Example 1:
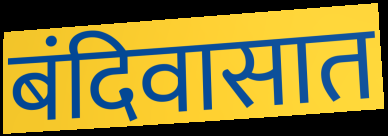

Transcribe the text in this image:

बंदिवासात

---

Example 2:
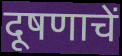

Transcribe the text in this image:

दूषणाचें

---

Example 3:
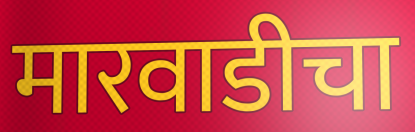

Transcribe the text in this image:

मारवाडीचा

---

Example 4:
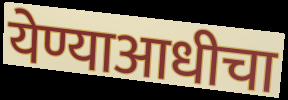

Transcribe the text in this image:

येण्याआधीचा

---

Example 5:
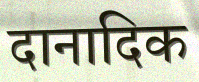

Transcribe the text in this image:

दानादिक